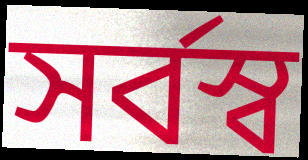
সর্বস্ব